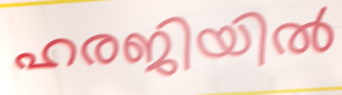
ഹരജിയിൽ